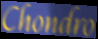
Chondro